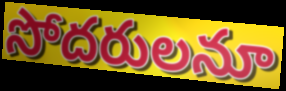
సోదరులనూ